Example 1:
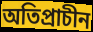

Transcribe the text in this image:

অতিপ্রাচীন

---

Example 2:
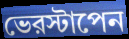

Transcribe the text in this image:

ভেরস্টাপেন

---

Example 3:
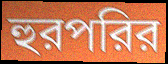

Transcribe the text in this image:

হুরপরির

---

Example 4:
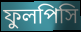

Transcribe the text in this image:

ফুলপিসি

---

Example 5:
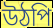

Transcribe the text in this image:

উঠপি